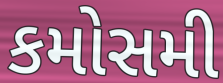
કમોસમી